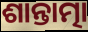
ଶାନ୍ତାତ୍ମା